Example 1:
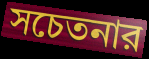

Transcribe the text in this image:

সচেতনার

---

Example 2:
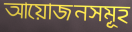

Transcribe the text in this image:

আয়োজনসমূহ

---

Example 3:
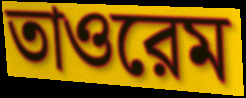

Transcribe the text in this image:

তাওরেম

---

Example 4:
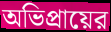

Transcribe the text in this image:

অভিপ্রায়ের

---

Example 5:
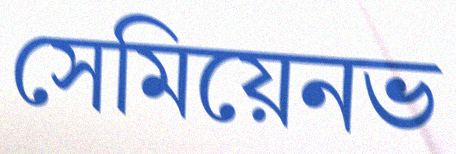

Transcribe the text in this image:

সেমিয়েনভ